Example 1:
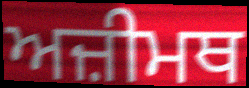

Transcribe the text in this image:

ਅਜ਼ੀਮਥ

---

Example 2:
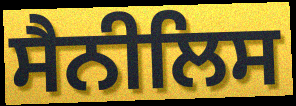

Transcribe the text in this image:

ਸੈਨੀਲਿਸ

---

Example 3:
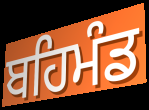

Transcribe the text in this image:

ਬਹਿਮੰਡ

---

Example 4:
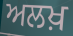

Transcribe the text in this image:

ਅਲਖ਼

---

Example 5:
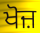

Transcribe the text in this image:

ਖੋਜ਼